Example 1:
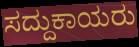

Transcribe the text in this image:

ಸದ್ದುಕಾಯರು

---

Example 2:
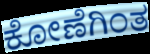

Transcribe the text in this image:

ಕೋಣೆಗಿಂತ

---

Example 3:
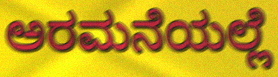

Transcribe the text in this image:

ಅರಮನೆಯಲ್ಲೆ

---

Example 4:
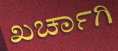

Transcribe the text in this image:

ಖರ್ಚಾಗಿ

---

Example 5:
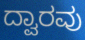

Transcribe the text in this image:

ದ್ವಾರವು